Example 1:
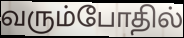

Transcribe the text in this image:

வரும்போதில்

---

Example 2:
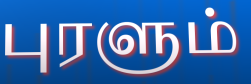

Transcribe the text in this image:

புரளும்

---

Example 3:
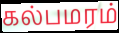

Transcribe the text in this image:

கல்பமரம்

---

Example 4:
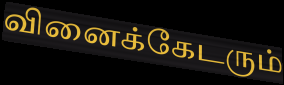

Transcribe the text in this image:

வினைக்கேடரும்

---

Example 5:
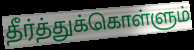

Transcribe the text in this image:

தீர்த்துக்கொள்ளும்